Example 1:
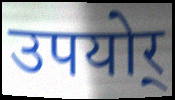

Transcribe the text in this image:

उपयोर्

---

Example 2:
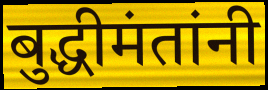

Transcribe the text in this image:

बुद्धीमंतांनी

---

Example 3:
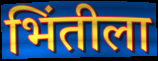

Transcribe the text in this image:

भिंतीला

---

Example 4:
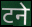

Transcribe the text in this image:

टने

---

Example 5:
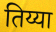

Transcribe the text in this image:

तिय्या